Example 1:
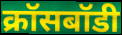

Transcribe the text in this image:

क्रॉसबॉडी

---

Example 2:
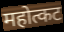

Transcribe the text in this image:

महोत्कट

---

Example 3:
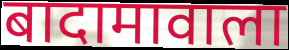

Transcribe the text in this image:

बादामावाला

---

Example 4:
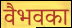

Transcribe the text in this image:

वैभवका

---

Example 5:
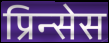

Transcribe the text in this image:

प्रिन्सेस